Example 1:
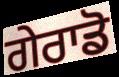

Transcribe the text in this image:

ਗੇਰਾਡੋ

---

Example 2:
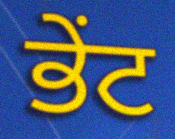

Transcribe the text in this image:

ਭੇਂਟ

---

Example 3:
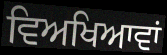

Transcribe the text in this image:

ਵਿਅਖਿਆਵਾਂ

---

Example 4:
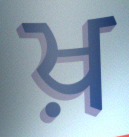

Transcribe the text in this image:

ਖ਼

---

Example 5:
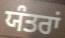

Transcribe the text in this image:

ਯੰਤਰਾਂ